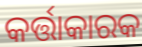
କର୍ତ୍ତାକାରକ